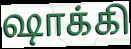
ஷாக்கி